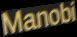
Manobi